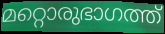
മറ്റൊരുഭാഗത്ത്